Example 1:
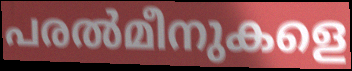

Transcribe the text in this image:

പരൽമീനുകളെ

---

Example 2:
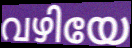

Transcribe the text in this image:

വഴിയേ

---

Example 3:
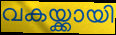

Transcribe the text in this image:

വകയ്ക്കായി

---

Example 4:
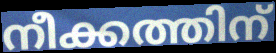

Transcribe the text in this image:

നീക്കത്തിന്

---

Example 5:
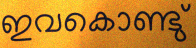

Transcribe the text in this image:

ഇവകൊണ്ടു്